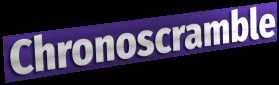
Chronoscramble